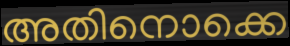
അതിനൊക്കെ